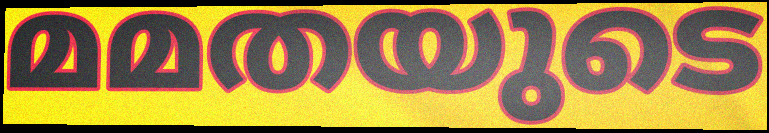
മമതയുടെ